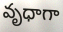
వృధాగా